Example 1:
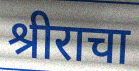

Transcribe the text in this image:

श्रीराचा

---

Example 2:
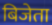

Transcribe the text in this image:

बिजेता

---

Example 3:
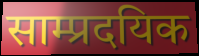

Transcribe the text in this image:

साम्प्रदयिक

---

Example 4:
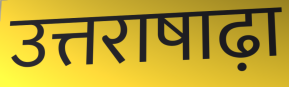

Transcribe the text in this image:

उत्तराषाढ़ा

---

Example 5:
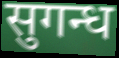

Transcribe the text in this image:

सुगन्ध